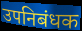
उपनिबंधक